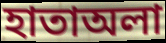
হাতাঅলা